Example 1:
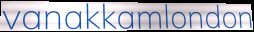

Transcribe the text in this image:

vanakkamlondon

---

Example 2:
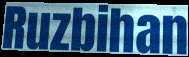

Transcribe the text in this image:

Ruzbihan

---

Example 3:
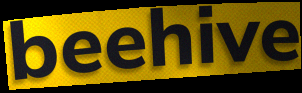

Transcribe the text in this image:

beehive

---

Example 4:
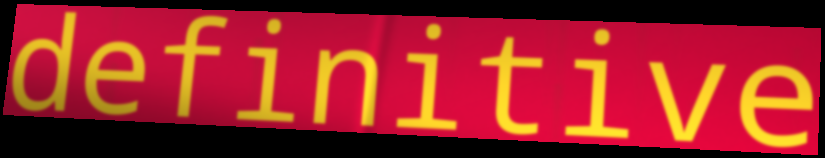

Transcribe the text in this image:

definitive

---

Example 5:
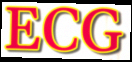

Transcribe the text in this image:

ECG